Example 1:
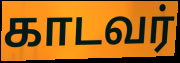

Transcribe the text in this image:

காடவர்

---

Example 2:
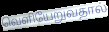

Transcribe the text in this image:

வெளியேறுவதால்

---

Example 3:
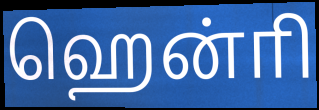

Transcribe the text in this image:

ஹென்ரி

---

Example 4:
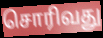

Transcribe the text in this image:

சொரிவது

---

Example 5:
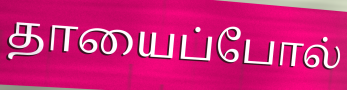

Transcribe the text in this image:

தாயைப்போல்